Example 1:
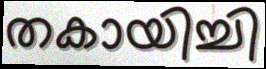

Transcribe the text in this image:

തകായിച്ചി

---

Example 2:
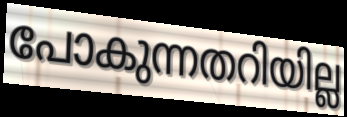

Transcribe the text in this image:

പോകുന്നതറിയില്ല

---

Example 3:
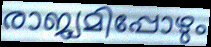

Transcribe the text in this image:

രാജ്യമിപ്പോഴും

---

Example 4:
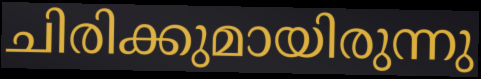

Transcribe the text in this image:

ചിരിക്കുമായിരുന്നു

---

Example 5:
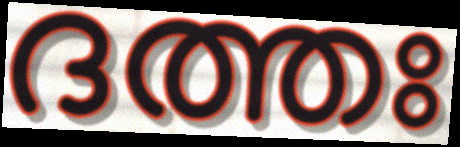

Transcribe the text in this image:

ദത്തഃ